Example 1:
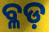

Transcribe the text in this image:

ବ୍ଳଡ଼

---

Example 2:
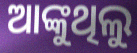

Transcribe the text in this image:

ଆଙ୍କୁଥିଲୁ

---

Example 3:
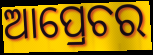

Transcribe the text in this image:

ଆପ୍ରେଚର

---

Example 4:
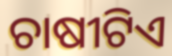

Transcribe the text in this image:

ଚାଷୀଟିଏ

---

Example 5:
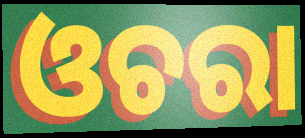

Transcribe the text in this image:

ଓଚରା